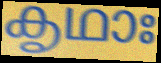
കൃഥാഃ